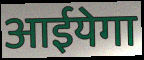
आईयेगा